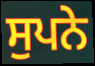
ਸੁਪਨੇ